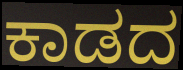
ಕಾಡದ